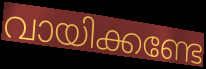
വായിക്കണ്ടേ